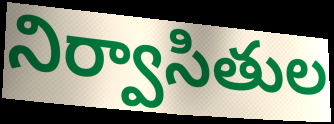
నిర్వాసితుల